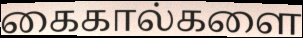
கைகால்களை